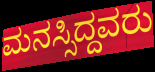
ಮನಸ್ಸಿದ್ದವರು